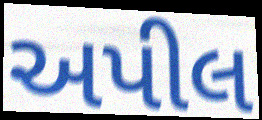
અપીલ